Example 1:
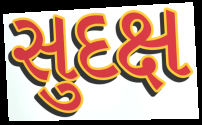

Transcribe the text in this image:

સુદક્ષ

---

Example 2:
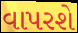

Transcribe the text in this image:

વાપરશે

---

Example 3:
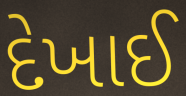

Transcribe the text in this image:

દેખાઈ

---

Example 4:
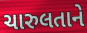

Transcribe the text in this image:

ચારુલતાને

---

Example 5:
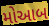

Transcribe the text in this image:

મોઆબ